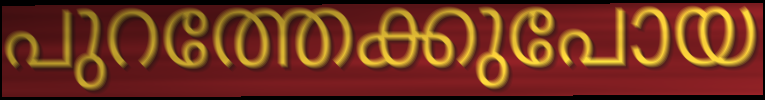
പുറത്തേക്കുപോയ